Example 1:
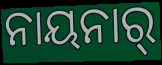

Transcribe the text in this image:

ନାୟନାର୍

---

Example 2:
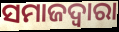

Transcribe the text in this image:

ସମାଜଦ୍ଵାରା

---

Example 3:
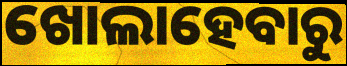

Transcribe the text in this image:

ଖୋଲାହେବାରୁ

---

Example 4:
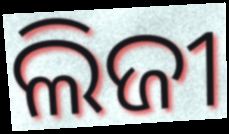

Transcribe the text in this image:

ଲିଜୀ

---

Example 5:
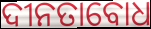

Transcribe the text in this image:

ଦୀନତାବୋଧ